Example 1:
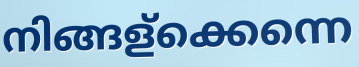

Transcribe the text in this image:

നിങ്ങള്ക്കെന്നെ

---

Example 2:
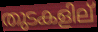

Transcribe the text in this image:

തുടകളില്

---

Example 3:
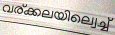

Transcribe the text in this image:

വര്ക്കലയില്വെച്ച്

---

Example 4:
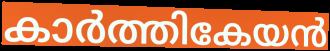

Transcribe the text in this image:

കാർത്തികേയൻ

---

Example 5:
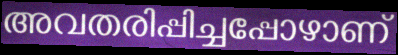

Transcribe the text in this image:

അവതരിപ്പിച്ചപ്പോഴാണ്